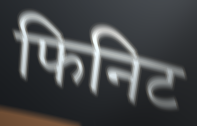
फिनिट